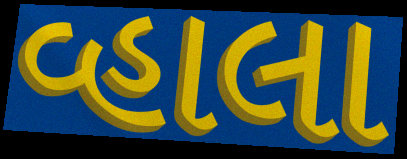
વ્હાલા